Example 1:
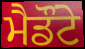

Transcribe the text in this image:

ਮੈਡੌਂਟੇ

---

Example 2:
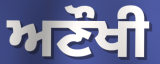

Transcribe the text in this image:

ਅਣੌਖੀ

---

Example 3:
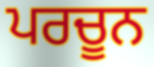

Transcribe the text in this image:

ਪਰਚੂਨ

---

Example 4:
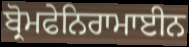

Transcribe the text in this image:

ਬ੍ਰੋਮਫੇਨਿਰਾਮਾਈਨ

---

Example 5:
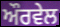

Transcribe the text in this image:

ਔਰਵੇਲ